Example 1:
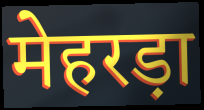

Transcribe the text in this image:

मेहरड़ा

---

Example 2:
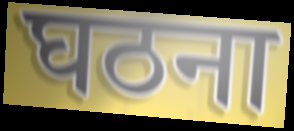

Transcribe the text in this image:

घठना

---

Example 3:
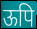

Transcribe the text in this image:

ऊपि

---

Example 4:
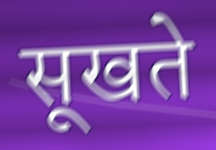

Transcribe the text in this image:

सूखते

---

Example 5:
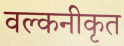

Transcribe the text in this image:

वल्कनीकृत